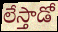
లేస్తాడో